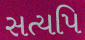
સત્યપિ